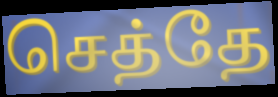
செத்தே